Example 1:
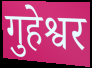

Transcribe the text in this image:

गुहेश्वर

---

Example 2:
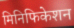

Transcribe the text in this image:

मिनिफिकेशन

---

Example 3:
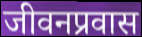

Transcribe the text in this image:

जीवनप्रवास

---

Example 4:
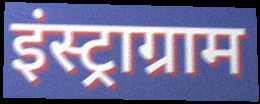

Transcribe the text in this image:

इंस्ट्राग्राम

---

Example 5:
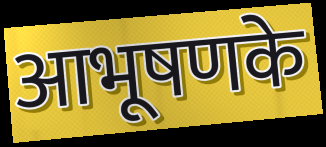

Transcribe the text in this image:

आभूषणके